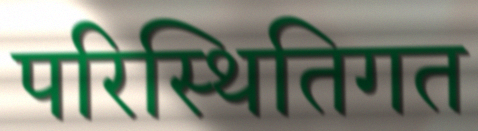
परिस्थितिगत